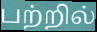
பற்றில்